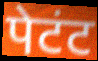
पेटंट